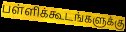
பள்ளிக்கூடங்களுக்கு